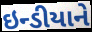
ઇન્ડીયાને